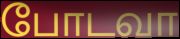
போடவா